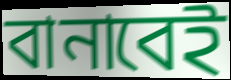
বানাবেই